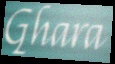
Ghara